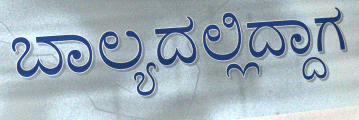
ಬಾಲ್ಯದಲ್ಲಿದ್ದಾಗ